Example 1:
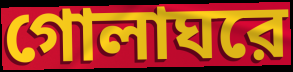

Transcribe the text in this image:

গোলাঘরে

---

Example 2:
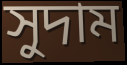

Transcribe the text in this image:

সুদাম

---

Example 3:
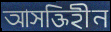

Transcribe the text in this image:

আসক্তিহীন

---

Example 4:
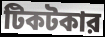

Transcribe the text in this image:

টিকটকার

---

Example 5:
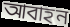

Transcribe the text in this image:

আবাহন